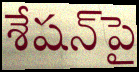
శేషన్‌పై